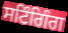
ਸਟਿੰਗਿੰਗ